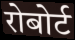
रोबोर्ट